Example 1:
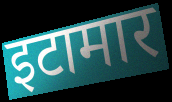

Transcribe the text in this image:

इटामार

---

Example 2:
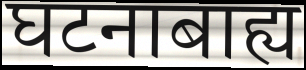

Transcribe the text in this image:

घटनाबाह्य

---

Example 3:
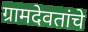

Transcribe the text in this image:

ग्रामदेवतांचे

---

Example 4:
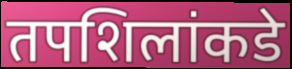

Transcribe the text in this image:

तपशिलांकडे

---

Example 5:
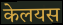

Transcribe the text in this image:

केलयस